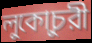
লুকোচুরী